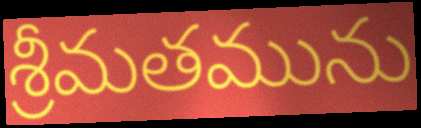
శ్రీమతమును